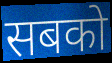
सबको